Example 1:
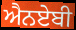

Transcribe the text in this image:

ਐਨਏਬੀ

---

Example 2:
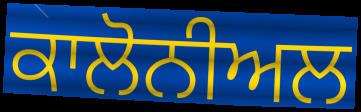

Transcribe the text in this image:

ਕਾਲੋਨੀਅਲ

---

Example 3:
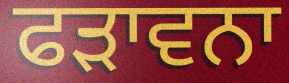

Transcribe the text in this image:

ਫੜਾਵਨਾ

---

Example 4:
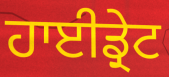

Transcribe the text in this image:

ਹਾਈਡ੍ਰੇਟ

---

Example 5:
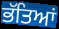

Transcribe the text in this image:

ਭੱਤਿਆਂ